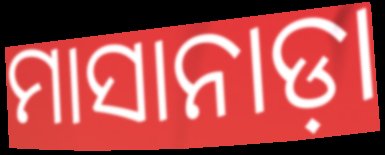
ମାସାନାଡ଼ା